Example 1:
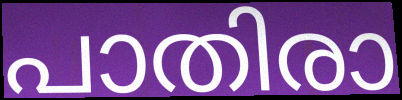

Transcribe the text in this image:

പാതിരാ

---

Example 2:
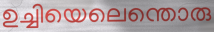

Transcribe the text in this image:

ഉച്ചിയെലെന്തൊരു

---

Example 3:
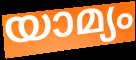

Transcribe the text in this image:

യാമ്യം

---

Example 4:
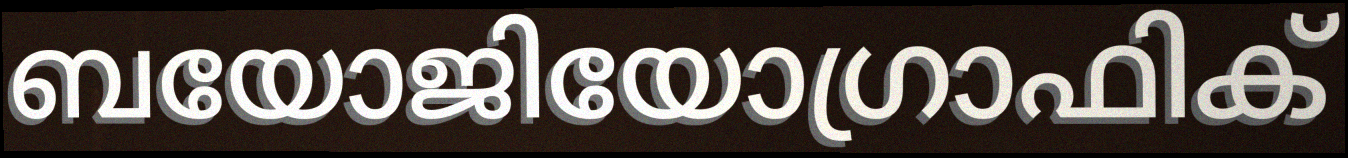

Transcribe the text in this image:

ബയോജിയോഗ്രാഫിക്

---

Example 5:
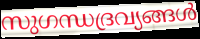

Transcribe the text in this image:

സുഗന്ധദ്രവ്യങ്ങൾ